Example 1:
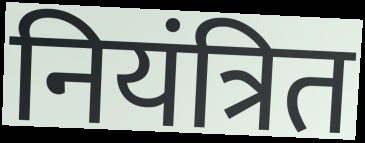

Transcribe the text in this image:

नियंत्रित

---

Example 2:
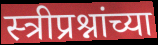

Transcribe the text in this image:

स्त्रीप्रश्नांच्या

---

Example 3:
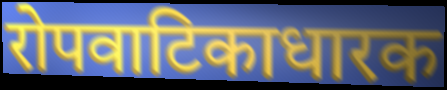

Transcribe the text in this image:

रोपवाटिकाधारक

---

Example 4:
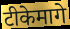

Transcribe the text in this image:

टीकेमागे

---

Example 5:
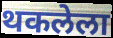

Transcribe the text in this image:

थकलेला